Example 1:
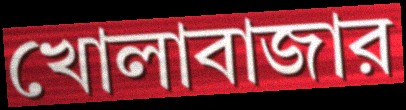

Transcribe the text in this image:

খোলাবাজার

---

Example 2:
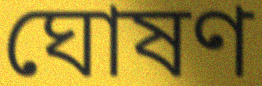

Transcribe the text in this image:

ঘোষণ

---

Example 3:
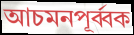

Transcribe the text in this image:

আচমনপূর্ব্বক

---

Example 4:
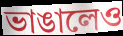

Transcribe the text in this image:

ভাঙালেও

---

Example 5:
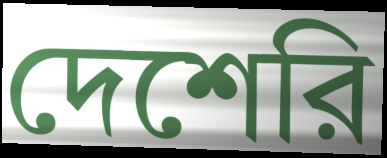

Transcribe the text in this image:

দেশেরি